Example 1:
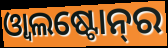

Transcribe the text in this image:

ଓ୍ୱାଲଷ୍ଟୋନ୍‌ର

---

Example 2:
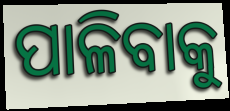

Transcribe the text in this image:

ପାଳିବାକୁ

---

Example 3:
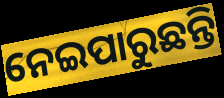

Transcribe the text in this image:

ନେଇପାରୁଛନ୍ତି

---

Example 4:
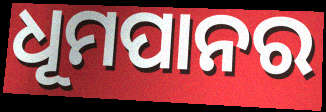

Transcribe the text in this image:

ଧୂମପାନର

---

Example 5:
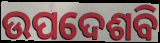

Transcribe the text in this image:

ଉପଦେଶବି